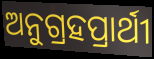
ଅନୁଗ୍ରହପ୍ରାର୍ଥୀ